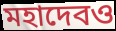
মহাদেবও